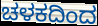
ಚಳಕದಿಂದ